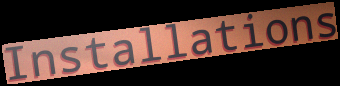
Installations